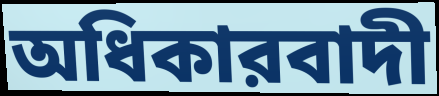
অধিকারবাদী